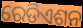
ରେଡିଏଶନ